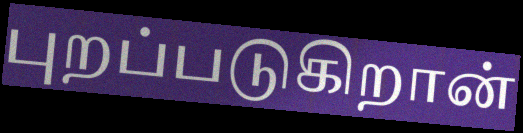
புறப்படுகிறான்